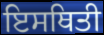
ਇਸਥਿਤੀ